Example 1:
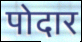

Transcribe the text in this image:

पोदार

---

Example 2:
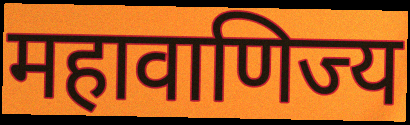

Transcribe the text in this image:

महावाणिज्य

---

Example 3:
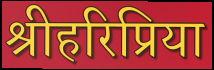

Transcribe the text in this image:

श्रीहरिप्रिया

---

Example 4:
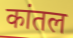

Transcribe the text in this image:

कांतल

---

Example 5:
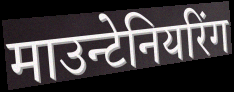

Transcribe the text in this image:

माउन्टेनियरिंग